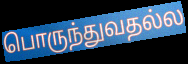
பொருந்துவதல்ல